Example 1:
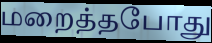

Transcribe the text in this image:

மறைத்தபோது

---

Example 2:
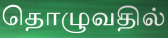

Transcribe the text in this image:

தொழுவதில்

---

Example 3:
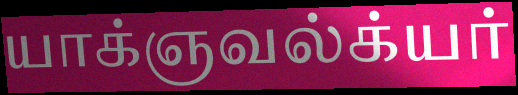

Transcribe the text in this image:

யாக்ஞவல்க்யர்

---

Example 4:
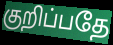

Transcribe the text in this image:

குறிப்பதே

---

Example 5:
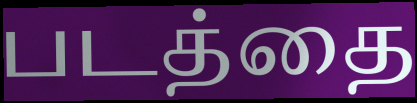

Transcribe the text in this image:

படத்தை